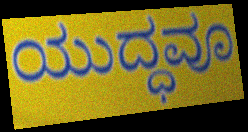
ಯುದ್ಧವೂ